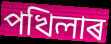
পখিলাৰ